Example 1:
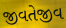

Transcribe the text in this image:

જીવતેજીવ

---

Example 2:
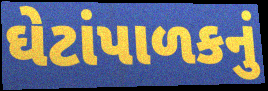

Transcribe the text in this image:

ઘેટાંપાળકનું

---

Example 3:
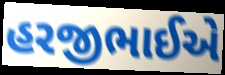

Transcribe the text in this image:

હરજીભાઈએ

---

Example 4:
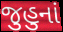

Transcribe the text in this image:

જુહુનાં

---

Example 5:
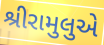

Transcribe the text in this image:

શ્રીરામુલુએ